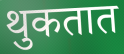
थुकतात